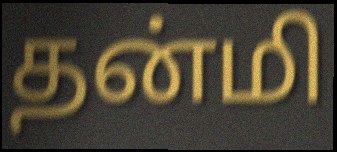
தன்மி